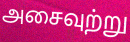
அசைவுற்று